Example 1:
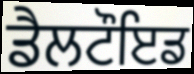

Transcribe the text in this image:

ਡੈਲਟੌਇਡ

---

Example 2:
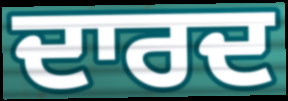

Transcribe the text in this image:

ਦਾਰਦ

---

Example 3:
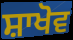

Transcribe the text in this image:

ਸ਼ਾਖੋਵ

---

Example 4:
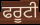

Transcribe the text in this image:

ਫਰੂਟੀ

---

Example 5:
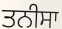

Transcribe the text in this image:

ਤਨੀਸਾ